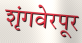
शृंगवेरपूर